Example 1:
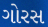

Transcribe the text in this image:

ગોરસ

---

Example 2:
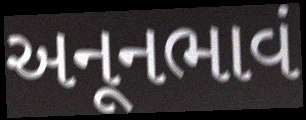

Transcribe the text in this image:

અનૂનભાવં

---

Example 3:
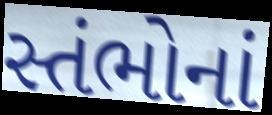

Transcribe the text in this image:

સ્તંભોનાં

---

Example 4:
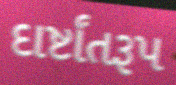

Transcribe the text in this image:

દાર્ષ્ટાંતરૂપ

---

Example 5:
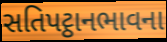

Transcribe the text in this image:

સતિપટ્ઠાનભાવના